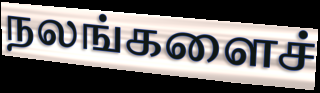
நலங்களைச்